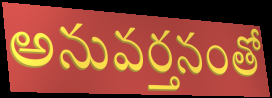
అనువర్తనంతో